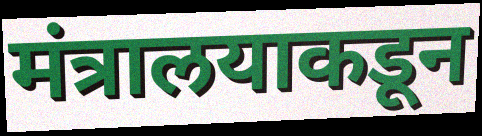
मंत्रालयाकडून